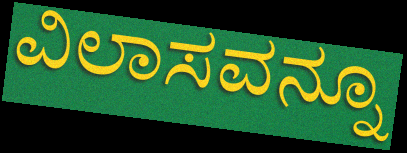
ವಿಲಾಸವನ್ನೂ